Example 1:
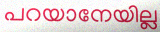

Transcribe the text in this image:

പറയാനേയില്ല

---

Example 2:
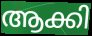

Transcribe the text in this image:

ആക്കി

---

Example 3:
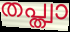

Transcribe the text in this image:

തപ്ത്വാ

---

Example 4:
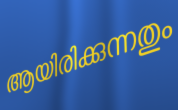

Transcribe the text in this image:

ആയിരിക്കുന്നതും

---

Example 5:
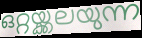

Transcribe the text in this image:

ഒറ്റയ്ക്കലയുന്ന